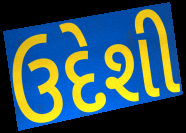
ઉદેશી